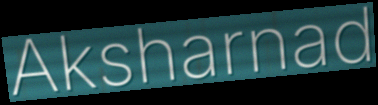
Aksharnad